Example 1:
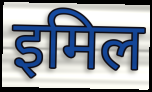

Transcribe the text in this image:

इमिल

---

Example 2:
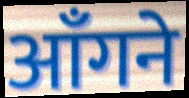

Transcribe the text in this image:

आँगने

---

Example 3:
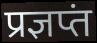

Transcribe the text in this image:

प्रज्ञप्तं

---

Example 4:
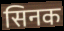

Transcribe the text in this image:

सिनक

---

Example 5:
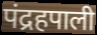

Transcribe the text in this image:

पंद्रहपाली